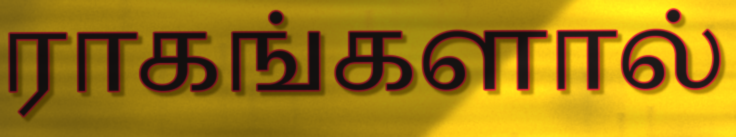
ராகங்களால்